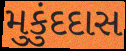
મુકુંદદાસ